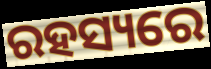
ରହସ୍ୟରେ